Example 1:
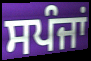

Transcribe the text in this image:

ਸਪੰਜਾਂ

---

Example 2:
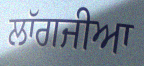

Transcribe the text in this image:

ਲਾੱਗਜੀਆ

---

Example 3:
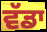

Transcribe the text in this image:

ਵੱਡਾ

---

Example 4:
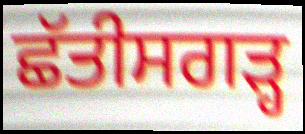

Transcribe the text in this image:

ਛੱਤੀਸਗੜ੍ਹ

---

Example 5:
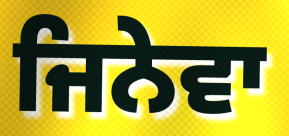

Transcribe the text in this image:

ਜਿਨੇਵਾ